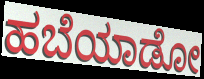
ಹಬೆಯಾಡೋ